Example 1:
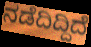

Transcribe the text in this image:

ನಡೆದಿದ್ದಿದೆ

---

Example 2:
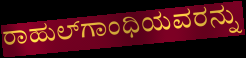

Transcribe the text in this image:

ರಾಹುಲ್‌ಗಾಂಧಿಯವರನ್ನು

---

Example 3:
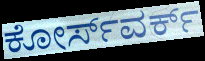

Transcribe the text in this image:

ಕೋರ್ಸ್‌ವರ್ಕ್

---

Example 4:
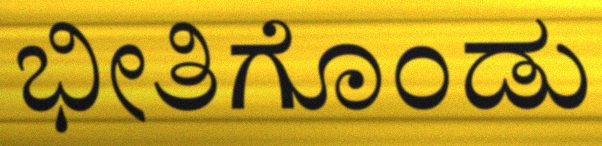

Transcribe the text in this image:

ಭೀತಿಗೊಂಡು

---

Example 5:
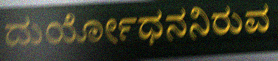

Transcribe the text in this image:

ದುರ್ಯೋಧನನಿರುವ